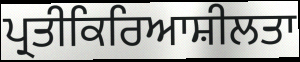
ਪ੍ਰਤੀਕਿਰਿਆਸ਼ੀਲਤਾ